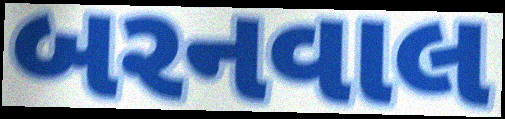
બરનવાલ